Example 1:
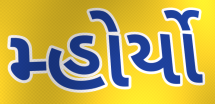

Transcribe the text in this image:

મ્હોર્યો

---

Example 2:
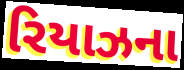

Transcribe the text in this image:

રિયાઝના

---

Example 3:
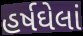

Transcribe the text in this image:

હર્ષઘેલાં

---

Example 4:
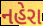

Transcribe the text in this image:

નહેરા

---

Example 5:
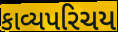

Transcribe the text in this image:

કાવ્યપરિચય